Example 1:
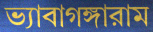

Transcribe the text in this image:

ভ্যাবাগঙ্গারাম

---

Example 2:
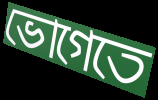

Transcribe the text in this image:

ভোগেতে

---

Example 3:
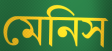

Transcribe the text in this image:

মেনিস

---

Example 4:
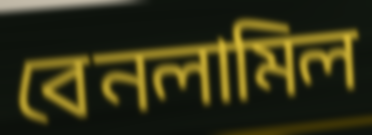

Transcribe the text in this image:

বেনলামিল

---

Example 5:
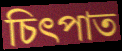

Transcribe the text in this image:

চিৎপাত